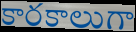
కారకాలుగా